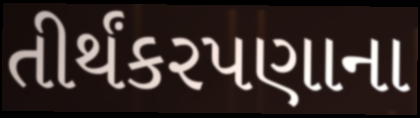
તીર્થંકરપણાના